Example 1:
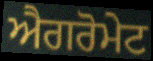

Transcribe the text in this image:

ਐਗਰੋਮੇਟ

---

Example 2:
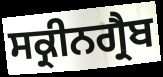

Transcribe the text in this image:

ਸਕ੍ਰੀਨਗ੍ਰੈਬ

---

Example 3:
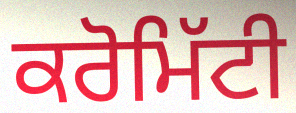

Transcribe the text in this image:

ਕਰੋਮਿੱਟੀ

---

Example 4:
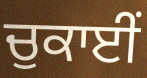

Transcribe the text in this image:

ਚੁਕਾਈਂ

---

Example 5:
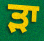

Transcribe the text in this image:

ੜਾ